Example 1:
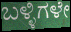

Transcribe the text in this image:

ಬಳ್ಳಿಗಳೇ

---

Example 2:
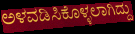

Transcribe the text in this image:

ಅಳವಡಿಸಿಕೊಳ್ಳಲಾಗಿದ್ದು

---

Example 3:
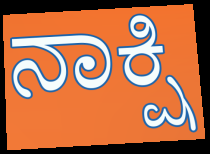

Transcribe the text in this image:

ನಾಕ್ಷಿ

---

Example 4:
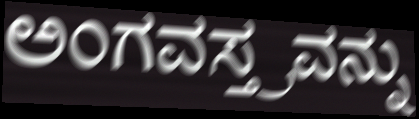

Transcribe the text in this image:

ಅಂಗವಸ್ತ್ರವನ್ನು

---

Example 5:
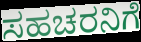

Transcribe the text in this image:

ಸಹಚರನಿಗೆ